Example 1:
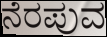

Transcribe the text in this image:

ನೆರಪುವ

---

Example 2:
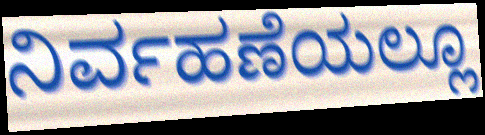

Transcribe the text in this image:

ನಿರ್ವಹಣೆಯಲ್ಲೂ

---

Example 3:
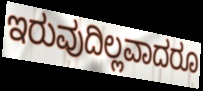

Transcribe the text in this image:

ಇರುವುದಿಲ್ಲವಾದರೂ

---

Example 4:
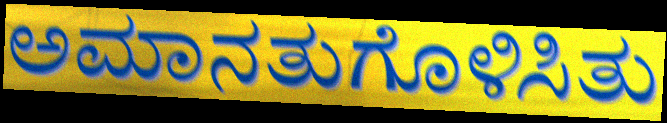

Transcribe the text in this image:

ಅಮಾನತುಗೊಳಿಸಿತು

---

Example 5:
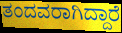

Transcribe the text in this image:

ತಂದವರಾಗಿದ್ದಾರೆ